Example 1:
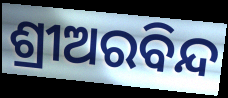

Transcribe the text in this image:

ଶ୍ରୀଅରବିନ୍ଦ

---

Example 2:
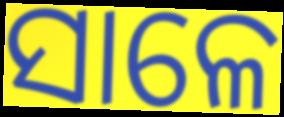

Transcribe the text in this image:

ସାଳେ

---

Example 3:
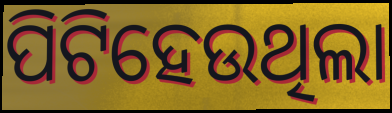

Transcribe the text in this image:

ପିଟିହେଉଥିଲା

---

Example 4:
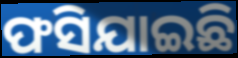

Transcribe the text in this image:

ଫସିଯାଇଛି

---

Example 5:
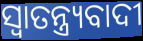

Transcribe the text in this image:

ସ୍ୱାତନ୍ତ୍ର୍ୟବାଦୀ